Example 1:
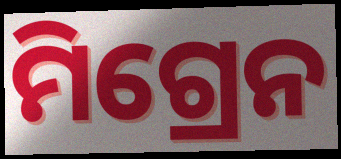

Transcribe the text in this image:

ମିଗ୍ରେନ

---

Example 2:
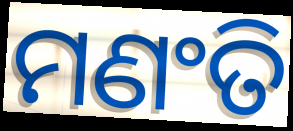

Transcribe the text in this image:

ମଣଂତି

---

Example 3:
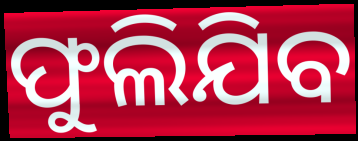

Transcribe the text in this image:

ଫୁଲିଯିବ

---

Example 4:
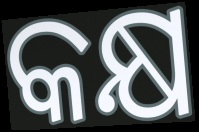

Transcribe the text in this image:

କକ୍ଷ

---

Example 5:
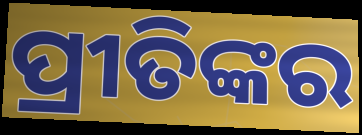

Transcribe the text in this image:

ପ୍ରୀତିଙ୍କର